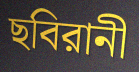
ছবিরানী